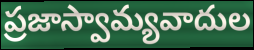
ప్రజాస్వామ్యవాదుల